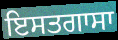
ਇਸਤਗਾਸਾ